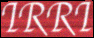
IRRI